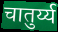
चातुर्य्य